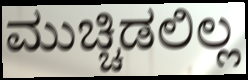
ಮುಚ್ಚಿಡಲಿಲ್ಲ